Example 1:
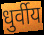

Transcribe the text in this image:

धुर्वीय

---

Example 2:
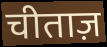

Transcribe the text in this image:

चीताज़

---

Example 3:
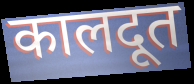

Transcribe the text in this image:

कालदूत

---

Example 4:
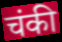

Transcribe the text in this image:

चंकी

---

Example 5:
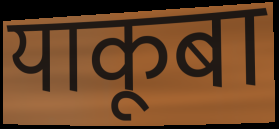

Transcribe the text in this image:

याकूबा